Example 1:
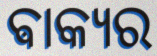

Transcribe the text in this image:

ଵାକ୍ଯର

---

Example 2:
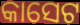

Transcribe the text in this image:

କାସେଟ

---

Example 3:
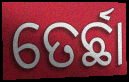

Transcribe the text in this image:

ତେର୍ଛା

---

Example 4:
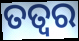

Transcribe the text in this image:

ତତ୍ଵର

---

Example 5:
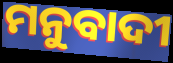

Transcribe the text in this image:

ମନୁବାଦୀ